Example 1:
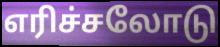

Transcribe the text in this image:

எரிச்சலோடு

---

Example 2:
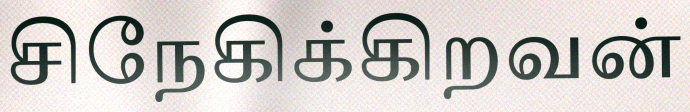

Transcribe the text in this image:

சிநேகிக்கிறவன்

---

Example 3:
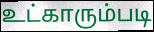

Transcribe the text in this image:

உட்காரும்படி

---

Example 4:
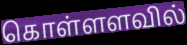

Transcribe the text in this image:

கொள்ளளவில்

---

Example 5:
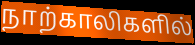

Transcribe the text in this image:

நாற்காலிகளில்